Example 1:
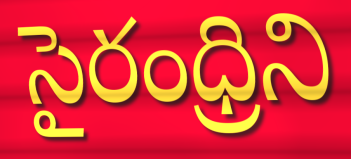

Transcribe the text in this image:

సైరంధ్రిని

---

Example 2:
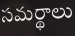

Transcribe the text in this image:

సమర్థాలు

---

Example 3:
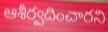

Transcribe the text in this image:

ఆశీర్వదించారని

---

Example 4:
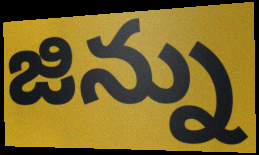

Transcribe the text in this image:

జిన్ను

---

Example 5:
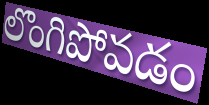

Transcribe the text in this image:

లొంగిపోవడం